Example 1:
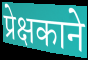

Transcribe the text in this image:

प्रेक्षकाने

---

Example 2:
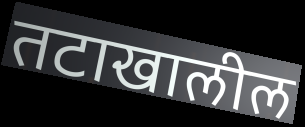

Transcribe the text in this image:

तटाखालील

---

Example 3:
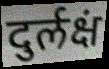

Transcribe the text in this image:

दुर्लक्षं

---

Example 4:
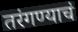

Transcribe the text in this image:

तरंगण्याचं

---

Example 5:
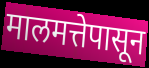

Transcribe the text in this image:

मालमत्तेपासून